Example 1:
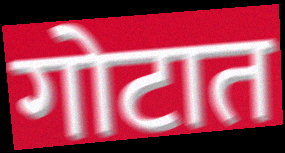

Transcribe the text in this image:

गोटात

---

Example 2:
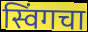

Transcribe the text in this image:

स्विंगचा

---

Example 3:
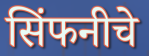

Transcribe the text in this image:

सिंफनीचे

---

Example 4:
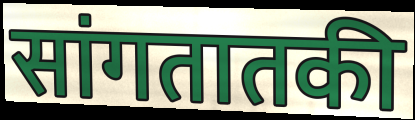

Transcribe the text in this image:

सांगतातकी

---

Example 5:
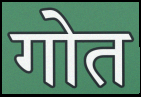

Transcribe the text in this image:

गोत